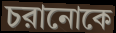
চরানোকে